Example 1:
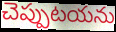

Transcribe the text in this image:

చెప్పుటయను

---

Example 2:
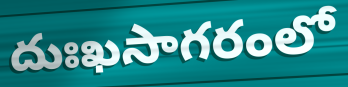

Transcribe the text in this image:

దుఃఖసాగరంలో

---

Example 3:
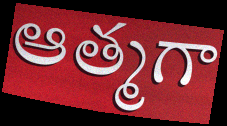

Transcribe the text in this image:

ఆత్మగా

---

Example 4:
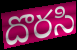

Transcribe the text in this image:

దొరసి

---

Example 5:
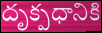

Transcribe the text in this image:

దృక్పధానికి